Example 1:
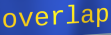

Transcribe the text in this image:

overlap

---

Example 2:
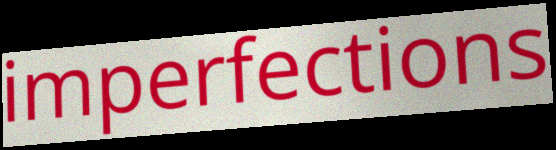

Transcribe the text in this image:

imperfections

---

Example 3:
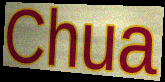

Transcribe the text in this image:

Chua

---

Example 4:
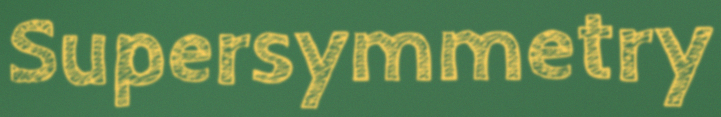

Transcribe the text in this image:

Supersymmetry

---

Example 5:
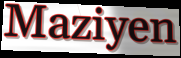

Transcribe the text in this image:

Maziyen